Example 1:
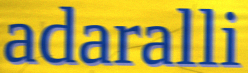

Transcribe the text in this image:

adaralli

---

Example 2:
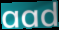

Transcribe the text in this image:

aad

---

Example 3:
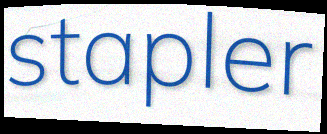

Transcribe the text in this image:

stapler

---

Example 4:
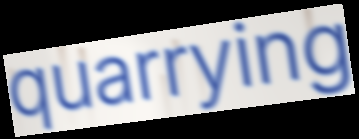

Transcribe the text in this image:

quarrying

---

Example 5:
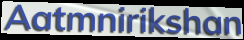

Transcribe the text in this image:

Aatmnirikshan